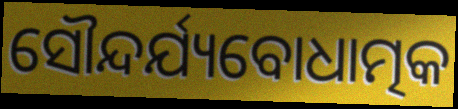
ସୌନ୍ଦର୍ଯ୍ୟବୋଧାତ୍ମକ